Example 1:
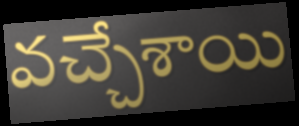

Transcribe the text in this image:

వచ్చేశాయి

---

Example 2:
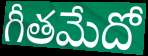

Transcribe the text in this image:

గీతమేదో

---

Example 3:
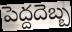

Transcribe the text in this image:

పెద్దదెబ్బ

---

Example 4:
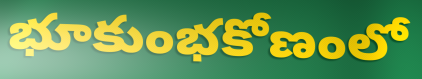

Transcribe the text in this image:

భూకుంభకోణంలో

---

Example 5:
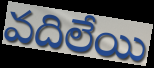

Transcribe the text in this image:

వదిలేయి